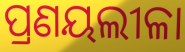
ପ୍ରଣୟଲୀଳା